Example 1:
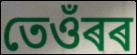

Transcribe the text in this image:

তেওঁৰৰ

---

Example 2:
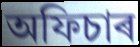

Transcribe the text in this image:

অফিচাৰ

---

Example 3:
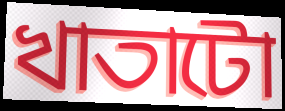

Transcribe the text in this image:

খাতাটো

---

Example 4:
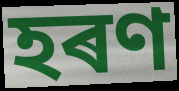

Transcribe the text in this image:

হৰণ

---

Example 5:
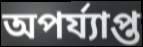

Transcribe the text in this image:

অপৰ্য্যাপ্ত